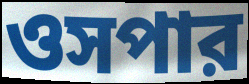
ওসপার